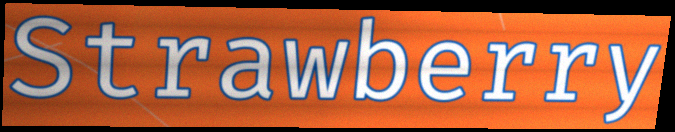
Strawberry